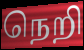
நெறி